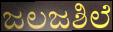
ಜಲಜಶಿಲೆ